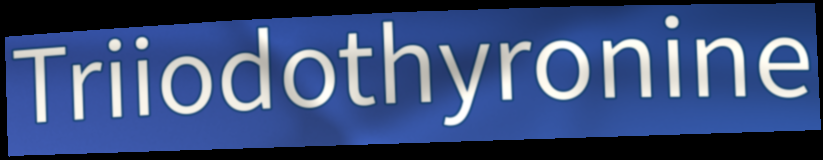
Triiodothyronine